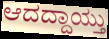
ಆದದ್ದಾಯ್ತು